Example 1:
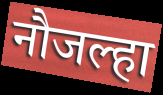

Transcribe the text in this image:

नौजल्हा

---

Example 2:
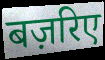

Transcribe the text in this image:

बज़रिए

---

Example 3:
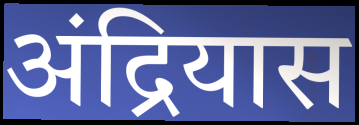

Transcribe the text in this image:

अंद्रियास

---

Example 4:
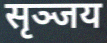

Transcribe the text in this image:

सृञ्जय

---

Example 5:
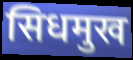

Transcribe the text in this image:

सिधमुख